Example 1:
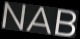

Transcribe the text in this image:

NAB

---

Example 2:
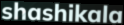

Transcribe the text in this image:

shashikala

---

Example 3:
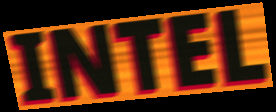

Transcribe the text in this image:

INTEL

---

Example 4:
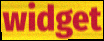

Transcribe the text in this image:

widget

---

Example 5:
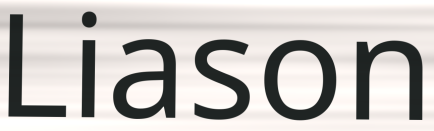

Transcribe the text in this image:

Liason